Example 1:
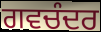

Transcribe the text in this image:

ਗਵਚੰਦਰ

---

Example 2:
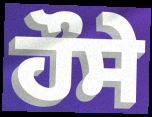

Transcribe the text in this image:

ਹੌਸੇ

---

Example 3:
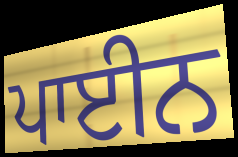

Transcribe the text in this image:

ਪਾਈਨ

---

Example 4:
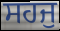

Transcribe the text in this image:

ਸਹਜੁ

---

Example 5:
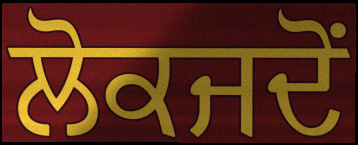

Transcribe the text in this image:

ਲੋਕਜਦੋਂ